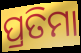
ପ୍ରତିମା